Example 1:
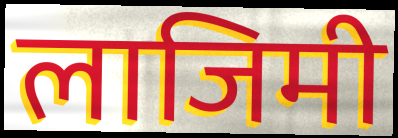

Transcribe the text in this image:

लाजिमी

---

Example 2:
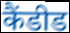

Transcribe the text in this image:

कैंडीड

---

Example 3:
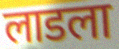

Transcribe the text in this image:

लाडला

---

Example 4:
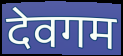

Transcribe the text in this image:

देवगम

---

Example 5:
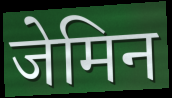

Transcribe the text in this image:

जेमिन